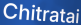
Chitratai